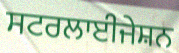
ਸਟਰਲਾਈਜੇਸ਼ਨ